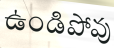
ఉండిపోవు